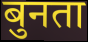
बुनता